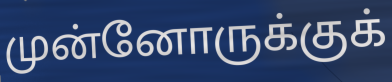
முன்னோருக்குக்